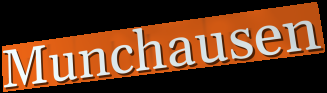
Munchausen